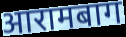
आरामबाग